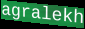
agralekh